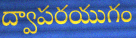
ద్వాపరయుగం